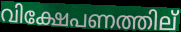
വിക്ഷേപണത്തില്